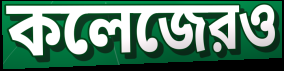
কলেজেরও